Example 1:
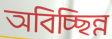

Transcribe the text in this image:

অবিচ্ছিন্ন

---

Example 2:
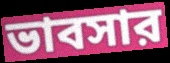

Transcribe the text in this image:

ভাবসার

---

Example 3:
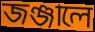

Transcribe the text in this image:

জঞ্জালে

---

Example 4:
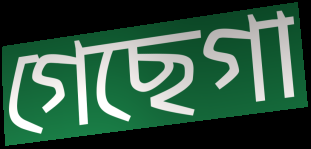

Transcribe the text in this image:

গেছেগা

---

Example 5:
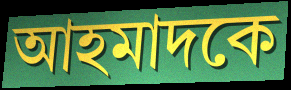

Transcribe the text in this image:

আহমাদকে